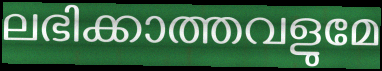
ലഭിക്കാത്തവളുമേ